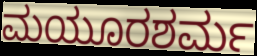
ಮಯೂರಶರ್ಮ